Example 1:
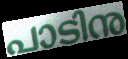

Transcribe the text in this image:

പാടിനു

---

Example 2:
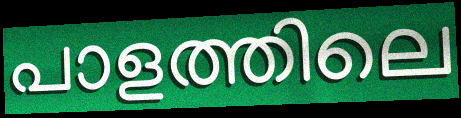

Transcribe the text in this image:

പാളത്തിലെ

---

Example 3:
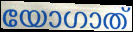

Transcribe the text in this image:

യോഗാത്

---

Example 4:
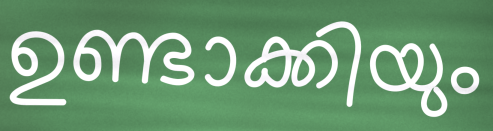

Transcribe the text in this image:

ഉണ്ടാക്കിയും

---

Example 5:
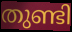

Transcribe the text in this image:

തുണ്ടി